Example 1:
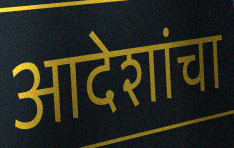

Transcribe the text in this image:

आदेशांचा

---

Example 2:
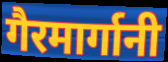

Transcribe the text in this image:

गैरमार्गानी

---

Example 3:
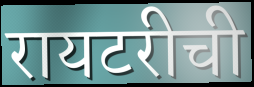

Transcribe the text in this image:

रायटरीची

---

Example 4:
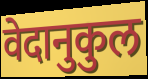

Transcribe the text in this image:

वेदानुकुल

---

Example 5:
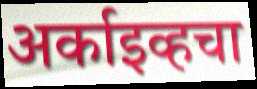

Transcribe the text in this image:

अर्काइव्हचा